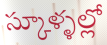
స్కూళ్ళల్లో